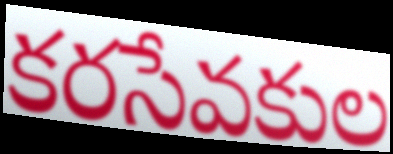
కరసేవకుల